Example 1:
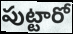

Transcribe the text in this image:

పుట్టారో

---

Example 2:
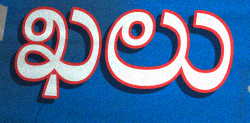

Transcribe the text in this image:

ఖలు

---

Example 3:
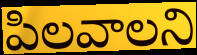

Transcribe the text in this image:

పిలవాలని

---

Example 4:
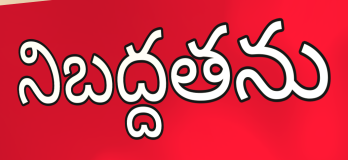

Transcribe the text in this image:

నిబద్దతను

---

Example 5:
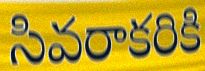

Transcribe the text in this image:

సివరాకరికి